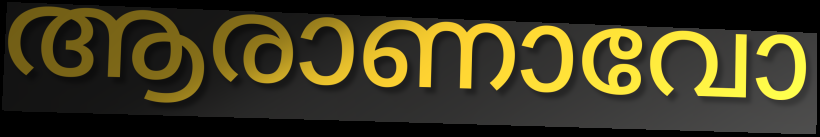
ആരാണാവോ